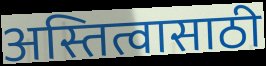
अस्तित्वासाठी